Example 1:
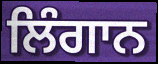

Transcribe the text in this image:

ਲਿੰਗਾਨ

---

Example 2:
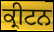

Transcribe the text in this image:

ਕ੍ਰੀਟਨ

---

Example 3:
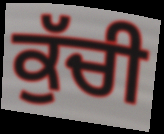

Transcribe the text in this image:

ਕੁੱਚੀ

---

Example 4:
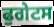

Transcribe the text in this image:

ਫੁਗੇਟਸ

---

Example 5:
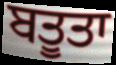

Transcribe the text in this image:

ਬਤੂਤਾ